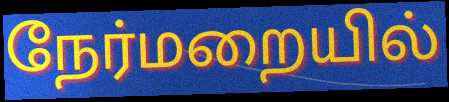
நேர்மறையில்